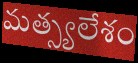
మత్స్యలేశం